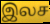
இலச